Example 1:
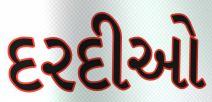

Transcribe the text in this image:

દરદીઓ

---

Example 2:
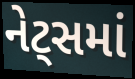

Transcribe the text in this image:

નેટ્સમાં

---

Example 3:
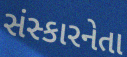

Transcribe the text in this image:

સંસ્કારનેતા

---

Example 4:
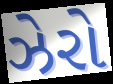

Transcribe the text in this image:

ઝેરો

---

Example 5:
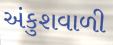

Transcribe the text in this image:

અંકુશવાળી